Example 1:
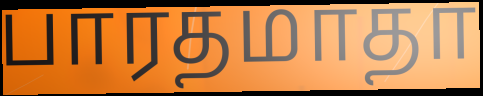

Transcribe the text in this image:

பாரதமாதா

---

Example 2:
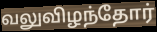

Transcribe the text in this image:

வலுவிழந்தோர்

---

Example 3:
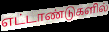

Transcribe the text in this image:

எட்டாண்டுகளில்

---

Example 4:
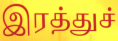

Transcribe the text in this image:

இரத்துச்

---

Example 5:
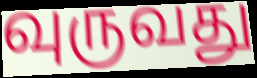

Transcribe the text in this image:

வுருவது